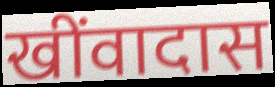
खींवादास